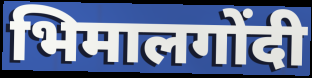
भिमालगोंदी